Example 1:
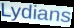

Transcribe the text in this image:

Lydians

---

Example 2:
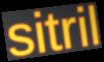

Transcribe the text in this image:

sitril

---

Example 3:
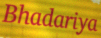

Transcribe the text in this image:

Bhadariya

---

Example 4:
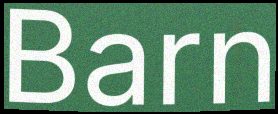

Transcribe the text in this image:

Barn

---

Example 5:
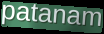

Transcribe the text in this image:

patanam